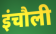
इंचौली